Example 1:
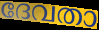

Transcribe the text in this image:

ദേവതാ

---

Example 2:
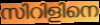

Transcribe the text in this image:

സിറിളിനെ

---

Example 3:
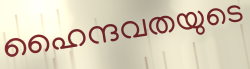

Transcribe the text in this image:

ഹൈന്ദവതയുടെ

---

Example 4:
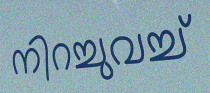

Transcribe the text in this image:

നിറച്ചുവച്ച്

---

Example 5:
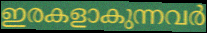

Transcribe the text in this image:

ഇരകളാകുന്നവർ